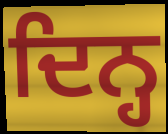
ਦਿਨ੍ਹ